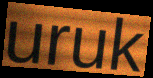
uruk